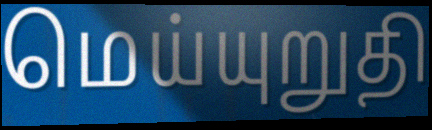
மெய்யுறுதி